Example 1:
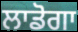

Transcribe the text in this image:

ਲਾਡੋਗਾ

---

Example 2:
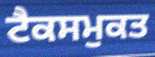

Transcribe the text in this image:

ਟੈਕਸਮੁਕਤ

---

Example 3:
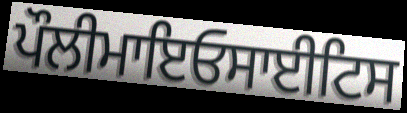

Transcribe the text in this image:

ਪੌਲੀਮਾਇਓਸਾਈਟਿਸ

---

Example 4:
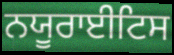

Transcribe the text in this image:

ਨਯੂਰਾਈਟਿਸ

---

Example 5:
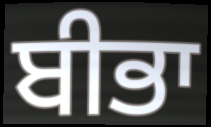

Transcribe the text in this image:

ਬੀਭਾ